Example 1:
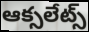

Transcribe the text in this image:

ఆక్సలేట్స్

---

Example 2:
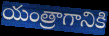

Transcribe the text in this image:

యంత్రాగానికి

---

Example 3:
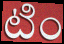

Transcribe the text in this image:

టిం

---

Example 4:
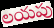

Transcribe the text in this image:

లయపు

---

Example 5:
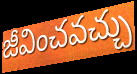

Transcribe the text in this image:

జీవించవచ్చు